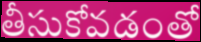
తీసుకోవడంతో